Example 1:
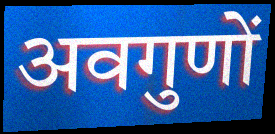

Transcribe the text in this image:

अवगुणों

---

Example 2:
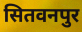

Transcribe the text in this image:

सितवनपुर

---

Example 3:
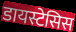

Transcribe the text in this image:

डायस्टेसिस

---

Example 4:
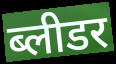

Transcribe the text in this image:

ब्लीडर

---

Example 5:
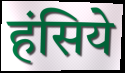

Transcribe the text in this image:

हंसिये